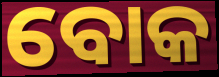
ବୋକ